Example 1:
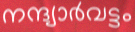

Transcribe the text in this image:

നന്ദ്യാർവട്ടം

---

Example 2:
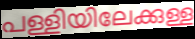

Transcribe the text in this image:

പള്ളിയിലേക്കുള്ള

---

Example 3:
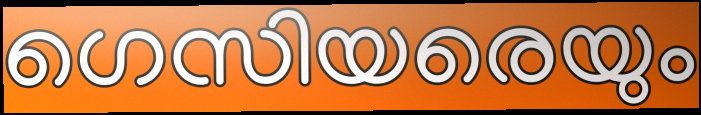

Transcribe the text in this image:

ഗെസിയരെയും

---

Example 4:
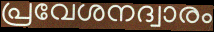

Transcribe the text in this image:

പ്രവേശനദ്വാരം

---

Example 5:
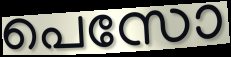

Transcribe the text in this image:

പെസോ